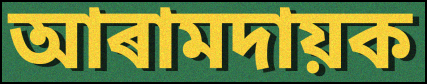
আৰামদায়ক